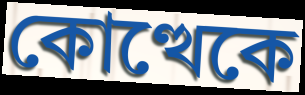
কোত্থেকে